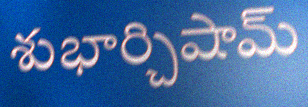
శుభార్చిషామ్